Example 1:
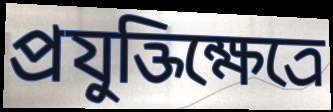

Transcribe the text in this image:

প্রযুক্তিক্ষেত্রে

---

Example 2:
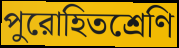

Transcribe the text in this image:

পুরোহিতশ্রেণি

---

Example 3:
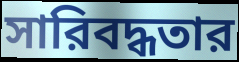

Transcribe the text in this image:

সারিবদ্ধতার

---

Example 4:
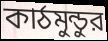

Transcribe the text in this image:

কাঠমুন্ডুর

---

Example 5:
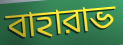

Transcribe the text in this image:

বাহারাভ